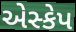
એસ્કેપ